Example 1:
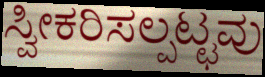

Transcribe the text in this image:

ಸ್ವೀಕರಿಸಲ್ಪಟ್ಟವು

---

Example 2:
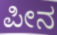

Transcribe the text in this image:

ಪೀನ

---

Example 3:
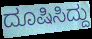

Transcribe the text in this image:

ದೂಷಿಸಿದ್ದು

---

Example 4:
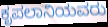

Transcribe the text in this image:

ಕೃಪಲಾನಿಯವರು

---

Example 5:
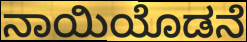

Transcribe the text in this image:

ನಾಯಿಯೊಡನೆ